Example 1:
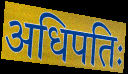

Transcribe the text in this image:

अधिपतिः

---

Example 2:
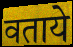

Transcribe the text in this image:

वताये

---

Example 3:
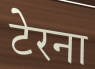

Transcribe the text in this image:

टेरना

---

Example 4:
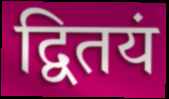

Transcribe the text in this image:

द्वितयं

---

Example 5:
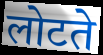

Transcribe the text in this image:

लोटते